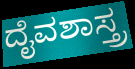
ದೈವಶಾಸ್ತ್ರ